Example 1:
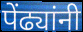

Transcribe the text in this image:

पेंढ्यांनी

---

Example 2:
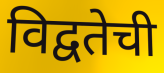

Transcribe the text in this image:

विद्वतेची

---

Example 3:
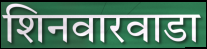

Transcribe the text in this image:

शिनवारवाडा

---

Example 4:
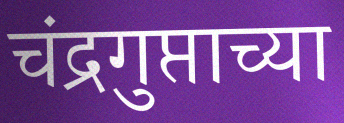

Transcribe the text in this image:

चंद्रगुप्ताच्या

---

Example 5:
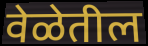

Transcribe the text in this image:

वेळेतील